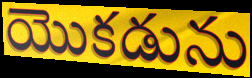
యొకడును